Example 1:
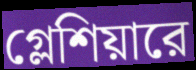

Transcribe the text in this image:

গ্লেশিয়ারে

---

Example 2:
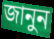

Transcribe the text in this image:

জানুন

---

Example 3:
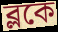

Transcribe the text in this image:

ব্লকে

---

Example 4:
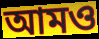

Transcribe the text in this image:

আমও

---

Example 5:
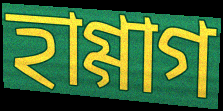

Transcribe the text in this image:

হাগ্গাগ